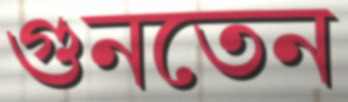
গুনতেন